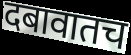
दबावातच